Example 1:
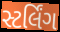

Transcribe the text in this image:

સ્ટર્લિંગ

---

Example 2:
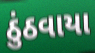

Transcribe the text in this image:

ઠુંઠવાયા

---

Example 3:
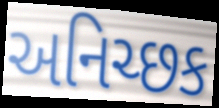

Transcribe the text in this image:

અનિચ્છક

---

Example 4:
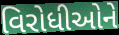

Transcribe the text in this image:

વિરોધીઓને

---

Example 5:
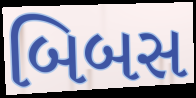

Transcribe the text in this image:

બિબસ